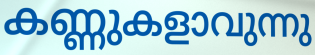
കണ്ണുകളാവുന്നു